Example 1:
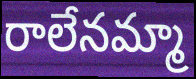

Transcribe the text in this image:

రాలేనమ్మా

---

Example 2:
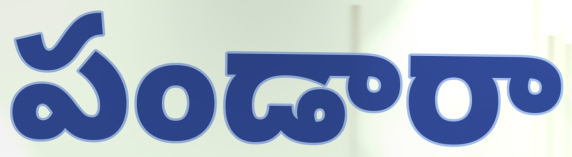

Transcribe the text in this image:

పండారా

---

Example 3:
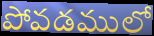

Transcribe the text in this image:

పోవడములో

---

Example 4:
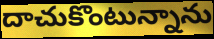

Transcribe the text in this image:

దాచుకొంటున్నాను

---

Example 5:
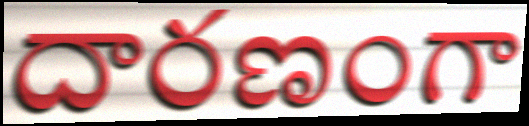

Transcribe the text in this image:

దారణంగా